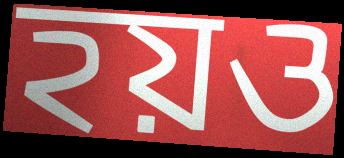
হয়ও